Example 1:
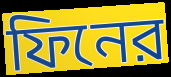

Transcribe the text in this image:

ফিনের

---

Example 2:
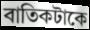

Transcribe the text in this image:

বাতিকটাকে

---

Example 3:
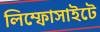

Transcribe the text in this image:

লিম্ফোসাইটে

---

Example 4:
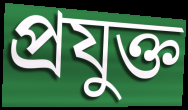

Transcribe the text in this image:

প্রযুক্ত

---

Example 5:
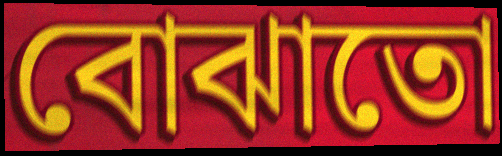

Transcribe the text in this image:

বোঝাতো